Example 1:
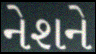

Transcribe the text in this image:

નેશને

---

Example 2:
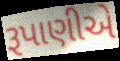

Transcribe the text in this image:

રૂપાણીએ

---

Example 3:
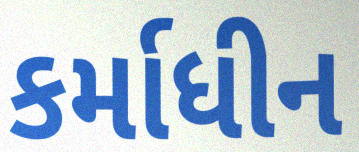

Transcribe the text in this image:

કર્માધીન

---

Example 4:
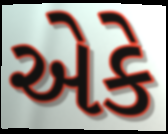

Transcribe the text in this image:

એકે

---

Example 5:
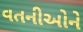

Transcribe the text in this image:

વતનીઓને